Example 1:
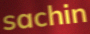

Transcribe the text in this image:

sachin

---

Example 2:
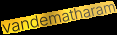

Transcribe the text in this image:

vandematharam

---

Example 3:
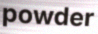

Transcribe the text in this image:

powder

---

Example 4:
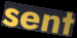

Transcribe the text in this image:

sent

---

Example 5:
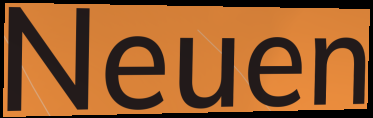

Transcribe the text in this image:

Neuen